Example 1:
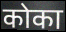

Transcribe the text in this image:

कोका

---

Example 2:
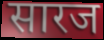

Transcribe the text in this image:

सारज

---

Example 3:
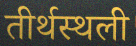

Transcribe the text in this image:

तीर्थस्थली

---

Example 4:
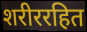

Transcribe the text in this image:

शरीररहित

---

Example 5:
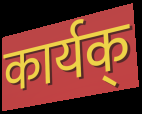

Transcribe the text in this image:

कार्यक्